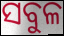
ସବୁଳ